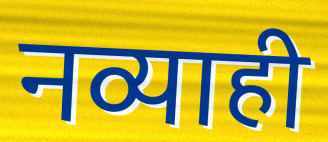
नव्याही